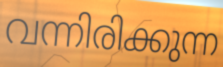
വന്നിരിക്കുന്ന